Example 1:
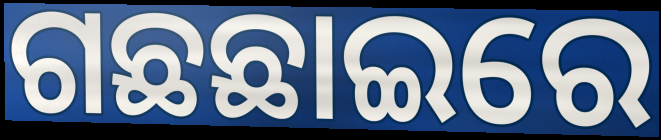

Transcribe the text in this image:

ଗଛଛାଇରେ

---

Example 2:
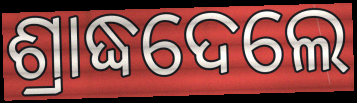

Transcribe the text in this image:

ଶ୍ରାଦ୍ଧଦେଲେ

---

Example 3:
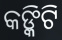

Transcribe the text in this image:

କଙ୍କିଟି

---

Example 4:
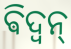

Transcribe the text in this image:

ଵିଦ୍ଵନ୍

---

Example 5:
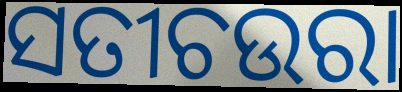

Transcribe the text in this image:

ସତୀଚଉରା